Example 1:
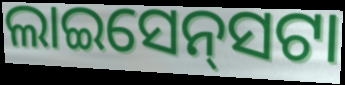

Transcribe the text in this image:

ଲାଇସେନ୍‍ସଟା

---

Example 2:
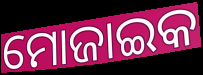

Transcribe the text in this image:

ମୋଜାଇକ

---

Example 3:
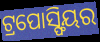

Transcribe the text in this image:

ଟ୍ରପୋସ୍ଫିୟର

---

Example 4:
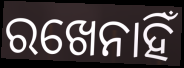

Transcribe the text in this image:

ରଖେନାହିଁ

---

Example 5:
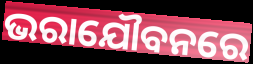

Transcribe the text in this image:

ଭରାଯୌବନରେ